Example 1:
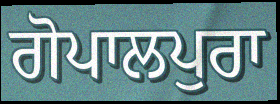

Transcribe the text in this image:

ਗੋਪਾਲਪੁਰਾ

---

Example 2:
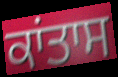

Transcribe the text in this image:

ਕਾਂਤਾਸ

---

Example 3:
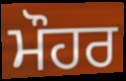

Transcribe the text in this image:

ਮੌਹਰ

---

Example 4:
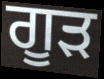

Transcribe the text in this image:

ਗੂੜ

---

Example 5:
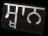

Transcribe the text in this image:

ਸ੍ਥਾਨ